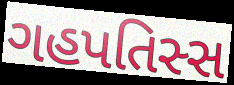
ગહપતિસ્સ